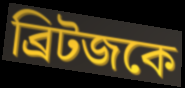
ব্রিটজকে